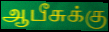
ஆபீசுக்கு